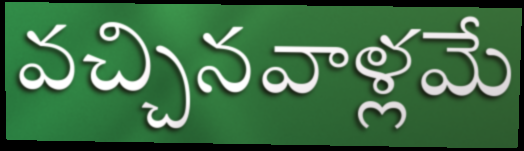
వచ్చినవాళ్లమే